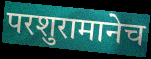
परशुरामानेच